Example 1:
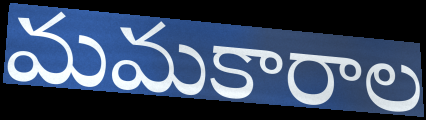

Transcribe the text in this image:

మమకారాల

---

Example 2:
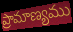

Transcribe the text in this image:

ప్రామాణ్యము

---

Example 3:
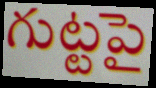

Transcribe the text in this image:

గుట్టపై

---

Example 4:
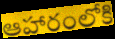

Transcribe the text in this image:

ఆహారంలోకి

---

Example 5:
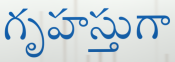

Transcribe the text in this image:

గృహస్తుగా